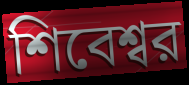
শিবেশ্বর